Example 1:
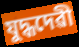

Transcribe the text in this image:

যুদ্ধদেৱী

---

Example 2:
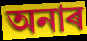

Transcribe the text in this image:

অনাৰ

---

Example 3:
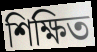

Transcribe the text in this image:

শিক্ষিত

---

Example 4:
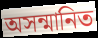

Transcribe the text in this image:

অসন্মানিত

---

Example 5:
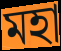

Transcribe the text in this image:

মহা